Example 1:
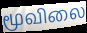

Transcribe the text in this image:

மூவிலை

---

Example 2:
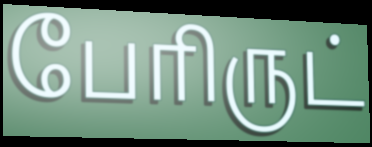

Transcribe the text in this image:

பேரிருட்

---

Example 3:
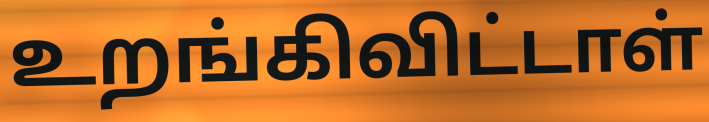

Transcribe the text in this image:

உறங்கிவிட்டாள்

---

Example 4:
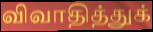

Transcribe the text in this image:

விவாதித்துக்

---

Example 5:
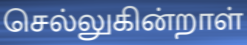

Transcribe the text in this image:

செல்லுகின்றாள்